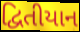
દ્વિતીયાન